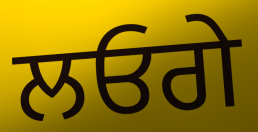
ਲਓਗੇ